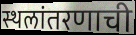
स्थलांतरणाची